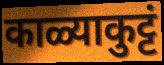
काळ्याकुट्टं